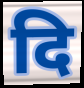
दि